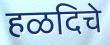
हळदिचे